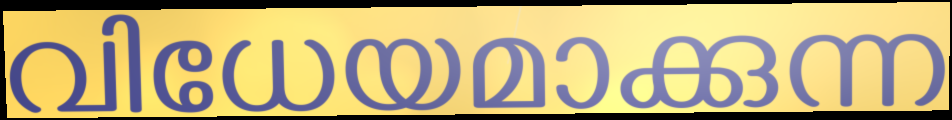
വിധേയമാക്കുന്ന